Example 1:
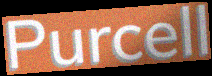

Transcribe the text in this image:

Purcell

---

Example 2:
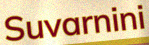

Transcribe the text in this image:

Suvarnini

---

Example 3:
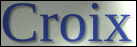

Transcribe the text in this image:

Croix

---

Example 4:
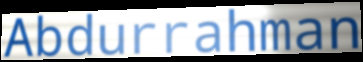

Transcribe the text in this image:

Abdurrahman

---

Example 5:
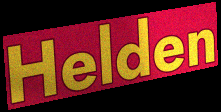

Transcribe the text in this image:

Helden